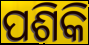
ପଶିକି